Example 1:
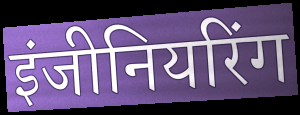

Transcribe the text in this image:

इंजीनियरिंग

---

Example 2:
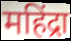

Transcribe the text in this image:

महिंद्रा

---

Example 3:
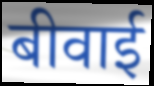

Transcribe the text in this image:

बीवाई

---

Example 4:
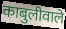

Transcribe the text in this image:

काबुलीवाले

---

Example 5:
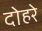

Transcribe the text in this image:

दोहरे